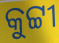
କୁଟ୍ଟୀ